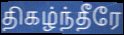
திகழ்ந்தீரே